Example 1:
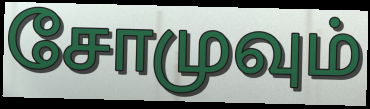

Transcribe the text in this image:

சோமுவும்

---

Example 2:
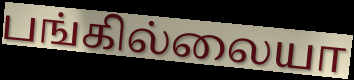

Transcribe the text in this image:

பங்கில்லையா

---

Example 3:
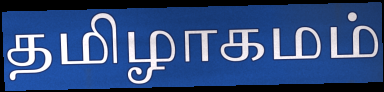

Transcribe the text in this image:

தமிழாகமம்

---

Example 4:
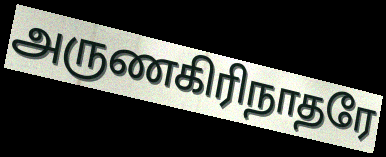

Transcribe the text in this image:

அருணகிரிநாதரே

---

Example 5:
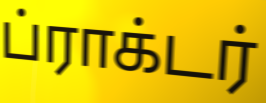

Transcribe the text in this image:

ப்ராக்டர்